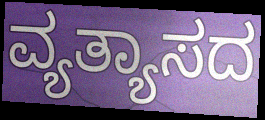
ವ್ಯತ್ಯಾಸದ